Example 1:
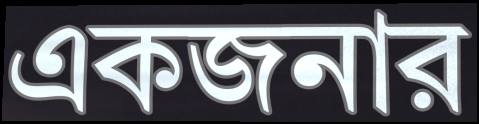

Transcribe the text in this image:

একজনার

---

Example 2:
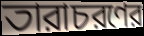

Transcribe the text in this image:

তারাচরণের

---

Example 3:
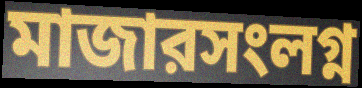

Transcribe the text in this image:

মাজারসংলগ্ন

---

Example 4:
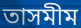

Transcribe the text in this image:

তাসমীম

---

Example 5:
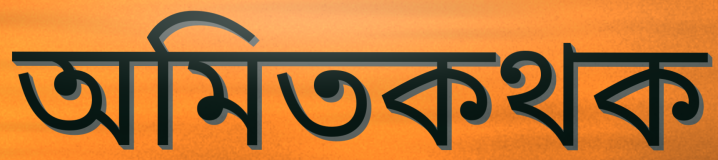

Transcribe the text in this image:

অমিতকথক